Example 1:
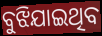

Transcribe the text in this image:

ବୁଝିଯାଇଥିବ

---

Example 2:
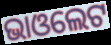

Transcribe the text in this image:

ଭାଓଲେଟ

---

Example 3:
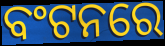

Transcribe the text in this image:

ବଂଟନରେ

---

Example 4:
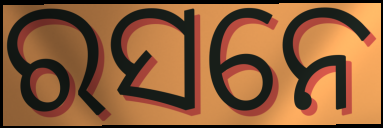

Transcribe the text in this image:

ରସନେ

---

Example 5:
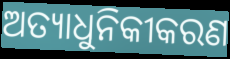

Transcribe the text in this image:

ଅତ୍ୟାଧୁନିକୀକରଣ